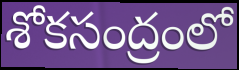
శోకసంద్రంలో